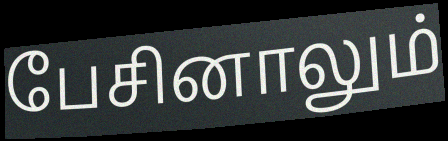
பேசினாலும்